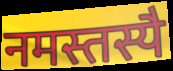
नमस्तस्यै